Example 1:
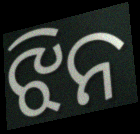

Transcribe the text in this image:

ଝିନ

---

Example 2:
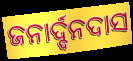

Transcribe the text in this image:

ଜନାର୍ଦ୍ଦନଦାସ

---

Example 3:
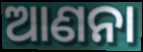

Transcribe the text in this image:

ଆଣନା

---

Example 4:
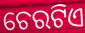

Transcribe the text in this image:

ଚେରଟିଏ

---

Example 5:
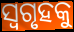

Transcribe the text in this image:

ସ୍ୱଗୃହକୁ